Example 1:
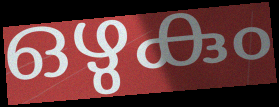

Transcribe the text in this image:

ഒഴുകും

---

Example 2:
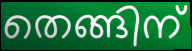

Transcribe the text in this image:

തെങ്ങിന്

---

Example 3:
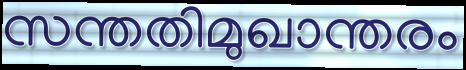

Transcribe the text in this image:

സന്തതിമുഖാന്തരം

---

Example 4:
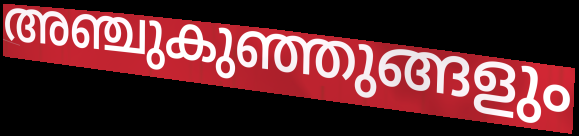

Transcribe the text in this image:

അഞ്ചുകുഞ്ഞുങ്ങളും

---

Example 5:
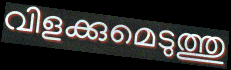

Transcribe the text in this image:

വിളക്കുമെടുത്തു